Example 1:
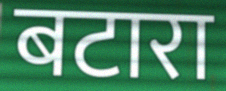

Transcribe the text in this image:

बटारा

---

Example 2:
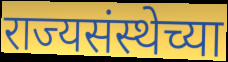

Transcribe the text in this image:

राज्यसंस्थेच्या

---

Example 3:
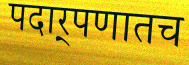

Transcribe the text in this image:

पदार्पणातच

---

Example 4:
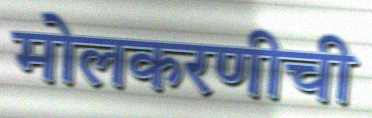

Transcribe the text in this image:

मोलकरणीची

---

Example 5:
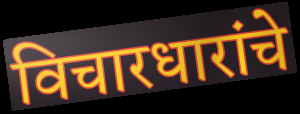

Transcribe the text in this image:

विचारधारांचे